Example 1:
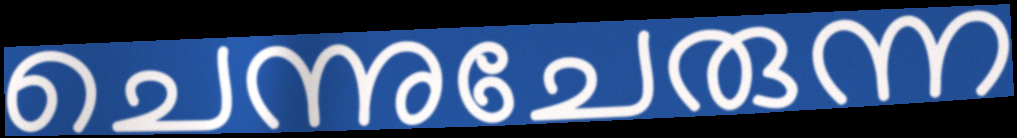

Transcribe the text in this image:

ചെന്നുചേരുന്ന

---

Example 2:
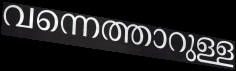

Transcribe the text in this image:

വന്നെത്താറുള്ള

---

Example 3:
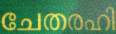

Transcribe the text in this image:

ചേതരഹി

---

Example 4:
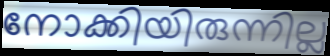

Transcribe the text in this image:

നോക്കിയിരുന്നില്ല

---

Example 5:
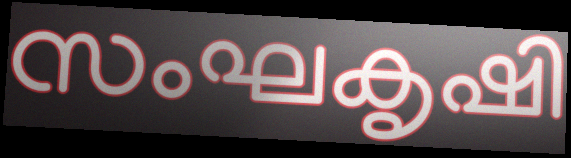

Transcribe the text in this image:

സംഘകൃഷി